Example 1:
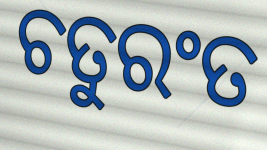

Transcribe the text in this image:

ଚତୁରଂତ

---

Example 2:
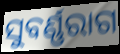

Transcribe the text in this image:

ସୁବର୍ଣ୍ଣରାଗ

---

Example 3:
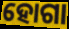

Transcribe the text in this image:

ହୋଗା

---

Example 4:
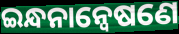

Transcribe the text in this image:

ଇନ୍ଧନାନ୍ଵେଷଣେ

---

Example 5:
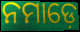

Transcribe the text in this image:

ନମାଡ଼େ